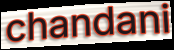
chandani